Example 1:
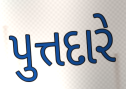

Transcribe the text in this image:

પુત્તદારે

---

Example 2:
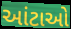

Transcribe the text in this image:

આંટાઓ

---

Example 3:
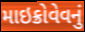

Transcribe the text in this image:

માઇક્રોવેવનું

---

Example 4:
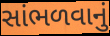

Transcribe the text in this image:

સાંભળવાનું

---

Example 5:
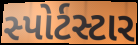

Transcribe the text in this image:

સ્પોર્ટસ્ટાર